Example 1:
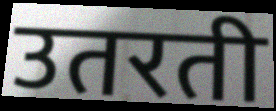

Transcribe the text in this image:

उतरती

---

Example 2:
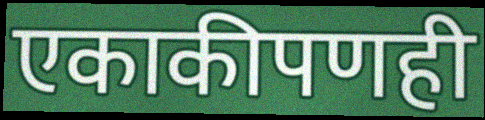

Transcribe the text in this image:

एकाकीपणही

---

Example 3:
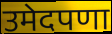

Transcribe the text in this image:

उमेदपणा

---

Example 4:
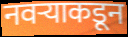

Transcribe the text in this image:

नवऱ्याकडून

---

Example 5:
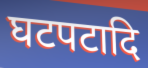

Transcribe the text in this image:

घटपटादि